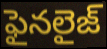
ఫైనలైజ్